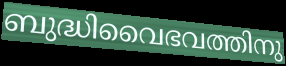
ബുദ്ധിവൈഭവത്തിനു